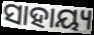
ସାହାୟ୍ୟ